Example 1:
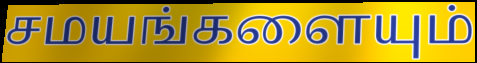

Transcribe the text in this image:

சமயங்களையும்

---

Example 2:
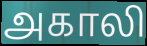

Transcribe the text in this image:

அகாலி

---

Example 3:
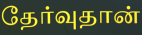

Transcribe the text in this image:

தேர்வுதான்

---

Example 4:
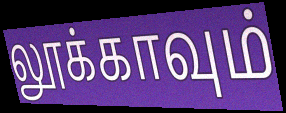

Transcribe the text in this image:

லூக்காவும்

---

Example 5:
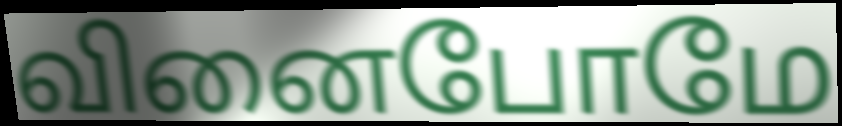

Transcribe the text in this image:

வினைபோமே